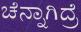
ಚೆನ್ನಾಗಿದ್ರೆ